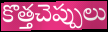
కొత్తచెప్పులు